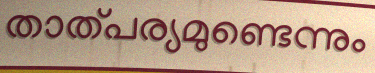
താത്പര്യമുണ്ടെന്നും